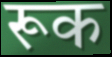
रूक